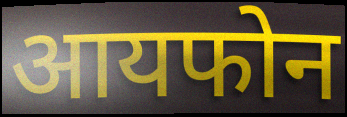
आयफोन